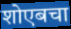
शोएबचा